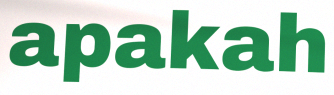
apakah